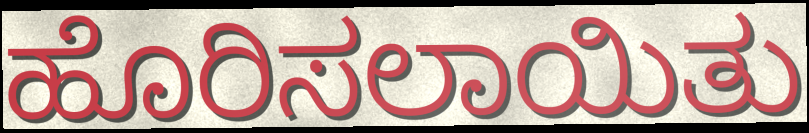
ಹೊರಿಸಲಾಯಿತು